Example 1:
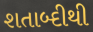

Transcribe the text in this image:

શતાબ્દીથી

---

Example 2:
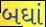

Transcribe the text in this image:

બઘાં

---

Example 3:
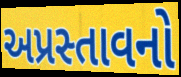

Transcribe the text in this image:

અપ્રસ્તાવનો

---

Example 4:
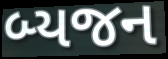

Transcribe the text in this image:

બ્યજન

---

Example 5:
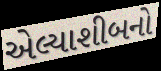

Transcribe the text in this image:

એલ્યાશીબનો